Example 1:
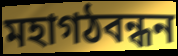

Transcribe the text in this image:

মহাগঠবন্ধন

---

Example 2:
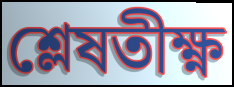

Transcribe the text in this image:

শ্লেষতীক্ষ্ণ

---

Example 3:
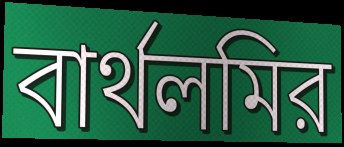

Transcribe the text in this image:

বার্থলমির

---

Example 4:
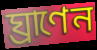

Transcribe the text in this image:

ঘ্রাণেন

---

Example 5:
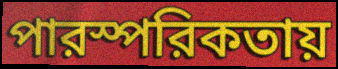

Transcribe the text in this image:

পারস্পরিকতায়